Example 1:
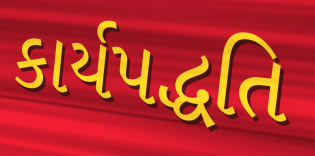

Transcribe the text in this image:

કાર્યપદ્ધતિ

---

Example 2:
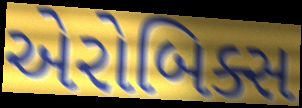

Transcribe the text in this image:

એરોબિક્સ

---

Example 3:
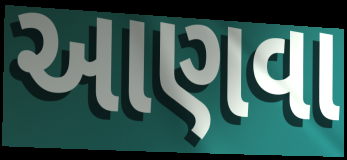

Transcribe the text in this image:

આણવા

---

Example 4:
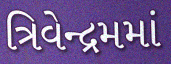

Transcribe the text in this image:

ત્રિવેન્દ્રમમાં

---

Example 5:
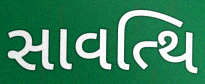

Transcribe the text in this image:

સાવત્થિ